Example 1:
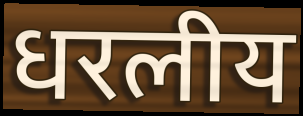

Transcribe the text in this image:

धरलीय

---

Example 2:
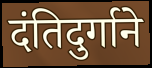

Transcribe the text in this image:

दंतिदुर्गाने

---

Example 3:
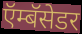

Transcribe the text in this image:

ऍम्बॅसेडर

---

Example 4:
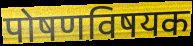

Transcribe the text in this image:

पोषणविषयक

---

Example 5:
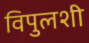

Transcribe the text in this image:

विपुलशी